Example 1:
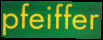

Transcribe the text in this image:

pfeiffer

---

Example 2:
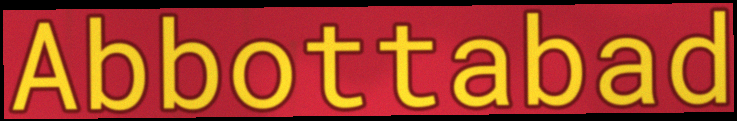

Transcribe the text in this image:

Abbottabad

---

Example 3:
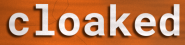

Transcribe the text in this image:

cloaked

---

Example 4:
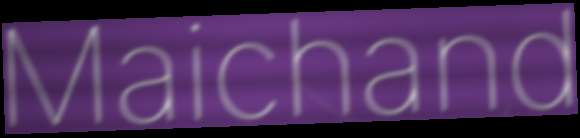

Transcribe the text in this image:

Maichand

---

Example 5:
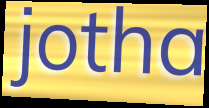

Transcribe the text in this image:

jotha